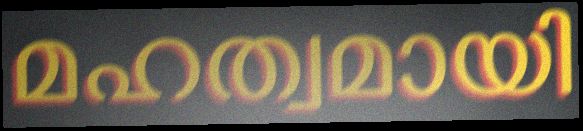
മഹത്വമായി